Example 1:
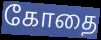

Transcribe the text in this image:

கோதை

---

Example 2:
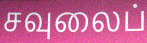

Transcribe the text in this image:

சவுலைப்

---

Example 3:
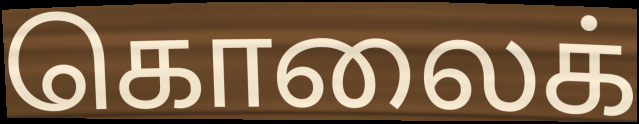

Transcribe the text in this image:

கொலைக்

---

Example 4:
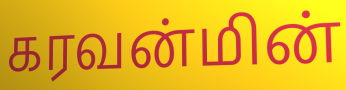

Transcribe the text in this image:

கரவன்மின்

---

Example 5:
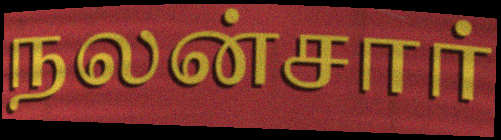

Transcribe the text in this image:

நலன்சார்